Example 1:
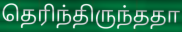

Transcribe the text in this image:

தெரிந்திருந்ததா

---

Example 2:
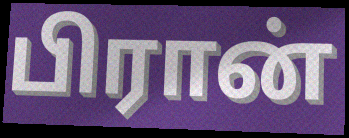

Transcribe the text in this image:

பிரான்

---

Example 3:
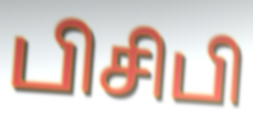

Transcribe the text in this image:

பிசிபி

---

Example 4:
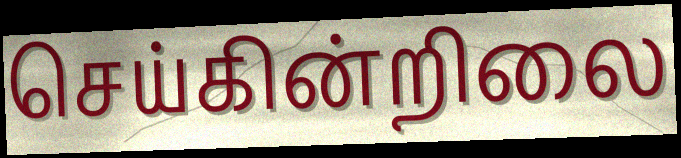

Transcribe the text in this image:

செய்கின்றிலை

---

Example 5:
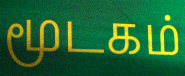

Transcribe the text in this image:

மூடகம்